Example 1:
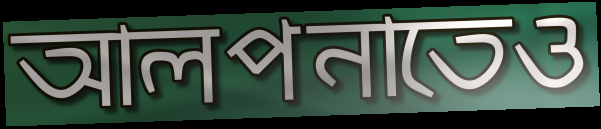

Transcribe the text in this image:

আলপনাতেও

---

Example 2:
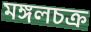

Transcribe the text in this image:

মঙ্গলচক্র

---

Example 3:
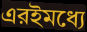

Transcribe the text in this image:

এরইমধ্যে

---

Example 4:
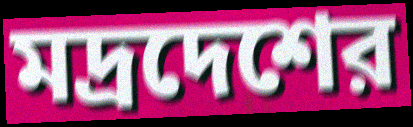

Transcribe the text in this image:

মদ্রদেশের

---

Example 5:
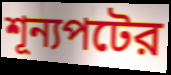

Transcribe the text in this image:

শূন্যপটের